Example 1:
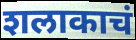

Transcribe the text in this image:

शलाकाचं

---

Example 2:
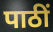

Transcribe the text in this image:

पाठीं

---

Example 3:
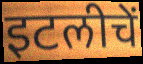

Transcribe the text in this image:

इटलीचें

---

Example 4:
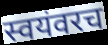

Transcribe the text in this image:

स्वयंवरच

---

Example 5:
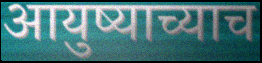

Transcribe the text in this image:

आयुष्याच्याच